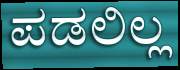
ಪಡಲಿಲ್ಲ